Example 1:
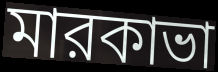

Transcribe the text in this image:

মারকাভা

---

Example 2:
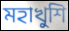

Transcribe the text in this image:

মহাখুশি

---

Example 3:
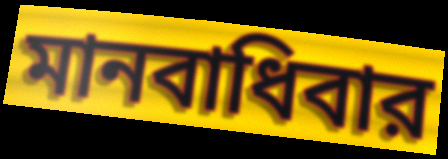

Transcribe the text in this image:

মানবাধিবার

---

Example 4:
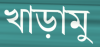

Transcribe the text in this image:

খাড়ামু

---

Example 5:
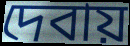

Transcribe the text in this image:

দেবায়